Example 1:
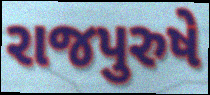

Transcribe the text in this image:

રાજપુરુષે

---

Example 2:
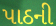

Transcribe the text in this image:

પાઠની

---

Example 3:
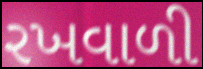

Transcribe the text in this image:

રખવાળી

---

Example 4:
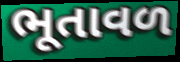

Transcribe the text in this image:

ભૂતાવળ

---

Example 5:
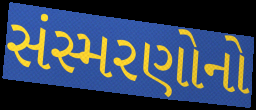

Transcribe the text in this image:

સંસ્મરણોનો